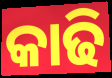
କାଢି